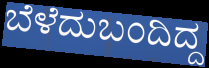
ಬೆಳೆದುಬಂದಿದ್ದ